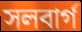
সলবার্গ